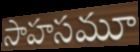
సాహసమూ